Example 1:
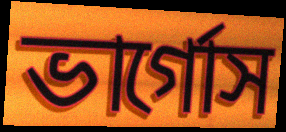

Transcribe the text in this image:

ভার্গোস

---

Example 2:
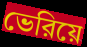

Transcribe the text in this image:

ভেরিয়ে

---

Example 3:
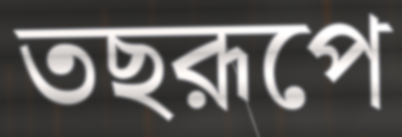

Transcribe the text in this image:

তছরূপে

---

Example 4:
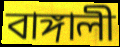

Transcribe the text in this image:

বাঙ্গালী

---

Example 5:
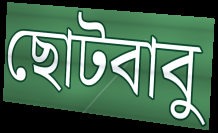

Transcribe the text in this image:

ছোটবাবু